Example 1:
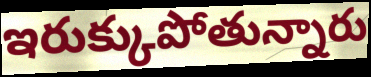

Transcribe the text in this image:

ఇరుక్కుపోతున్నారు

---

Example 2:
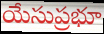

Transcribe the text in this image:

యేసుప్రభూ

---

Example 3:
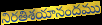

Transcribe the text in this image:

నిరతిశయానందము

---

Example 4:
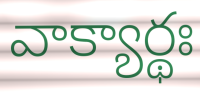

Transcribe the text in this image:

వాక్యార్థః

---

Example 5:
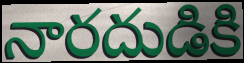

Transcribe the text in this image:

నారదుడికి